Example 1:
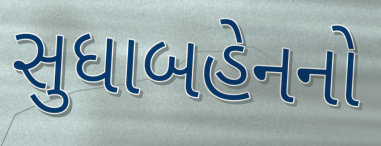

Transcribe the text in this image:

સુધાબહેનનો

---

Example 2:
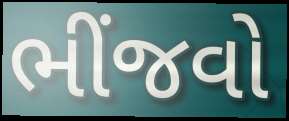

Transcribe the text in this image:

ભીંજવો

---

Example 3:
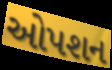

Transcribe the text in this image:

ઓપશન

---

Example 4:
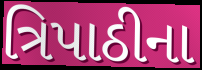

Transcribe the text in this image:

ત્રિપાઠીના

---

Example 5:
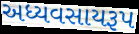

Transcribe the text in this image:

અધ્યવસાયરૂપ